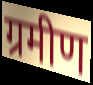
ग्रमीण